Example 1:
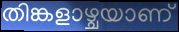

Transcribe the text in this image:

തിങ്കളാഴ്ചയാണ്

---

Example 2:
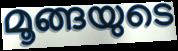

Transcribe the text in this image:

മൂങ്ങയുടെ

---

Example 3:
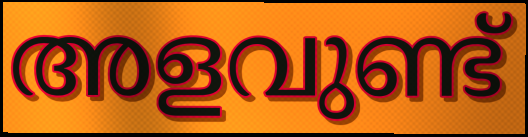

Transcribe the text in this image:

അളവുണ്ട്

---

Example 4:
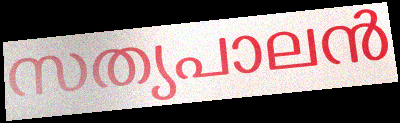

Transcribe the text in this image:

സത്യപാലൻ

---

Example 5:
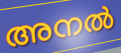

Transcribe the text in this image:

അനൽ